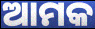
ଆମକ